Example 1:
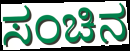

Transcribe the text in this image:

ಸಂಚಿನ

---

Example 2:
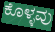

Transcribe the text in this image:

ಕೊಳ್ಳವು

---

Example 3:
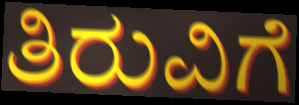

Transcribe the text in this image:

ತಿರುವಿಗೆ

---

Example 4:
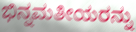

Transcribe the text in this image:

ಭಿನ್ನಮತೀಯರನ್ನು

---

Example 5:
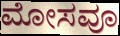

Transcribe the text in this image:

ಮೋಸವೂ